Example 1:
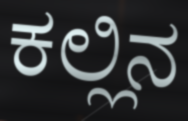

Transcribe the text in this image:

ಕಲ್ಲಿನ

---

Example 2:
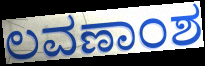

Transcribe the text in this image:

ಲವಣಾಂಶ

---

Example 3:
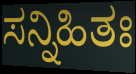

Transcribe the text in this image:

ಸನ್ನಿಹಿತಃ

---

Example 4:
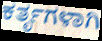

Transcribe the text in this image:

ಕರ್ತೃಗಳಾಗಿ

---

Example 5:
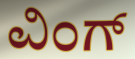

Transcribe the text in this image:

ವಿಂಗ್